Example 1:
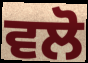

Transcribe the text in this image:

ਵਲੋ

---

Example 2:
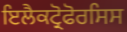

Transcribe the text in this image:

ਇਲੈਕਟ੍ਰੋਫੋਰਸਿਸ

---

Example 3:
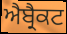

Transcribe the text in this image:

ਐਬ੍ਰੈਕਟ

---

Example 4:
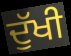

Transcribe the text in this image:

ਦੁੱਖੀ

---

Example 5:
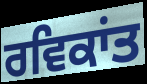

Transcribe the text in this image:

ਰਵਿਕਾਂਤ